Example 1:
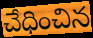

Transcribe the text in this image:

చేధించిన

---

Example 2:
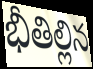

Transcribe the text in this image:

భీతిల్లిన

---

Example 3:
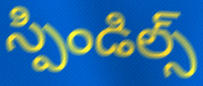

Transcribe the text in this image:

స్పిండిల్స్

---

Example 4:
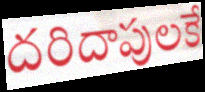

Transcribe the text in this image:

దరిదాపులకే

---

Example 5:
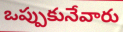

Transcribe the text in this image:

ఒప్పుకునేవారు